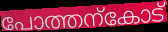
പോത്തന്കോട്